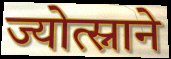
ज्योत्स्नाने